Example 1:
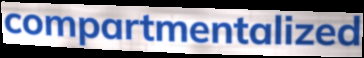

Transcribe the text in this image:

compartmentalized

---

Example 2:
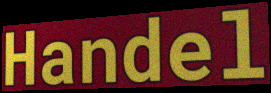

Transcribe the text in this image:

Handel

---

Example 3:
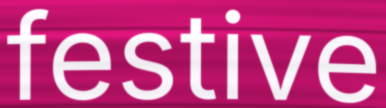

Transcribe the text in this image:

festive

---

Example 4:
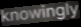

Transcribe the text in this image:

knowingly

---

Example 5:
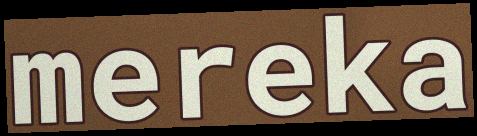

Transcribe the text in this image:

mereka